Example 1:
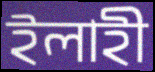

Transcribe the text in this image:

ইলাহী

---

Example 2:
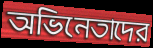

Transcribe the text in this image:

অভিনেতাদের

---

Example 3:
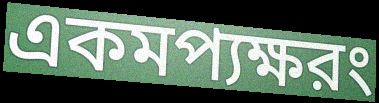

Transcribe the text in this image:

একমপ্যক্ষরং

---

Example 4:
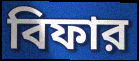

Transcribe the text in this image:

বিফার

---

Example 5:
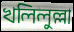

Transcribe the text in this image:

খলিলুল্লা